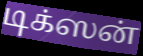
டிக்ஸன்